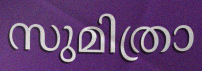
സുമിത്രാ